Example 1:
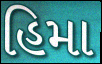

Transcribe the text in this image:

હિમા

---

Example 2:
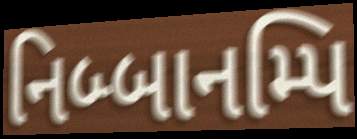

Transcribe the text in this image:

નિબ્બાનમ્પિ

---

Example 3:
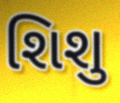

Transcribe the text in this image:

શિશુ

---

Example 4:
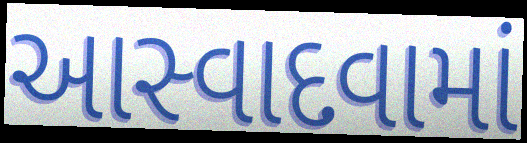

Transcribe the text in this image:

આસ્વાદવામાં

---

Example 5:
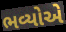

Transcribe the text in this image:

ભવ્યોએ